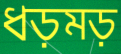
ধড়মড়